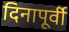
दिनापूर्वी